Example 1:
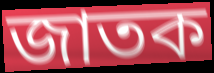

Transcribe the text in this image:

জাতক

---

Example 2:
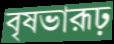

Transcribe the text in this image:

বৃষভারূঢ়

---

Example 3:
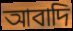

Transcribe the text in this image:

আবাদি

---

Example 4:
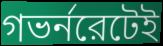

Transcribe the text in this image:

গভর্নরেটেই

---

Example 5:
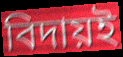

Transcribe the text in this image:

বিদায়ই